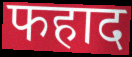
फहाद